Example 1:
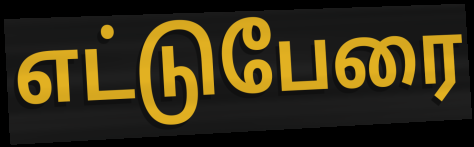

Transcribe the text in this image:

எட்டுபேரை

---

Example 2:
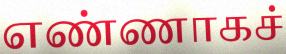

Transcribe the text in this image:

எண்ணாகச்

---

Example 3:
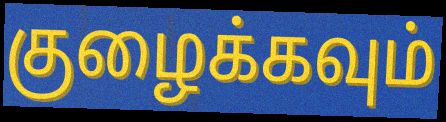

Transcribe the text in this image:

குழைக்கவும்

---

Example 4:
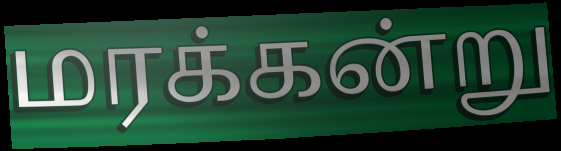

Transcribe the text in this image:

மரக்கன்று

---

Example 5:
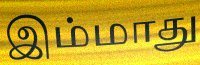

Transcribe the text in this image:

இம்மாது